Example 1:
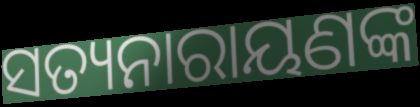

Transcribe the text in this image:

ସତ୍ୟନାରାୟଣଙ୍କ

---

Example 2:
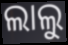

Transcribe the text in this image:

ଲାଲୁ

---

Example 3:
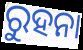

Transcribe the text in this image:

ରୁହନା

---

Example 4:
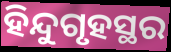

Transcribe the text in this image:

ହିନ୍ଦୁଗୃହସ୍ଥର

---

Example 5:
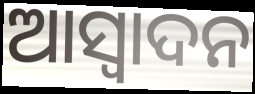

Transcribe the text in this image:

ଆସ୍ୱାଦନ